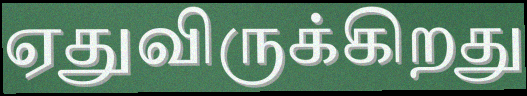
ஏதுவிருக்கிறது